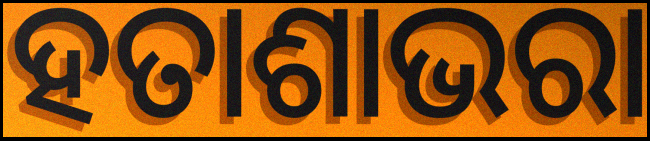
ହତାଶାଭରା